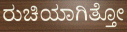
ರುಚಿಯಾಗಿತ್ತೋ